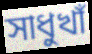
সাধুখাঁ